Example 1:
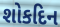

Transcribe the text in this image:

શોકદિન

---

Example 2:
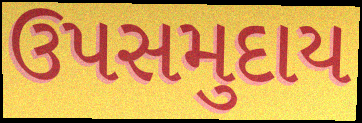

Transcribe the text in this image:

ઉપસમુદાય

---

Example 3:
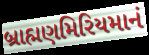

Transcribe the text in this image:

બ્રાહ્મણમિરિયમાનં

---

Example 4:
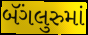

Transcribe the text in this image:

બૅંગલુરુમાં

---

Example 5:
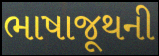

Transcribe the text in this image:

ભાષાજૂથની